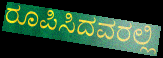
ರೂಪಿಸಿದವರಲ್ಲಿ